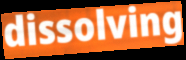
dissolving